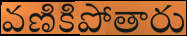
వణికిపోతారు